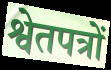
श्वेतपत्रों